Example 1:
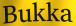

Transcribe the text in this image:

Bukka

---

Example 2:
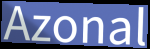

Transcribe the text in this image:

Azonal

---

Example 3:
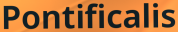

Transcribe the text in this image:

Pontificalis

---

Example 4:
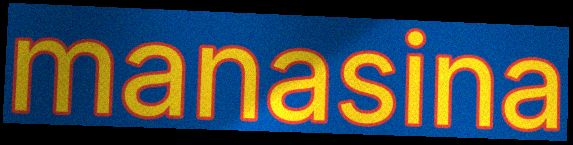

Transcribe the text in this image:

manasina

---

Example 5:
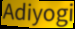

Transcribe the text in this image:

Adiyogi